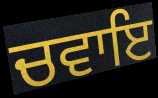
ਚਵਾਇ